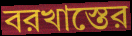
বরখাস্তের